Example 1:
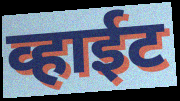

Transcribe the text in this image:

व्हाईट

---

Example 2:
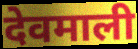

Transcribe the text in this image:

देवमाली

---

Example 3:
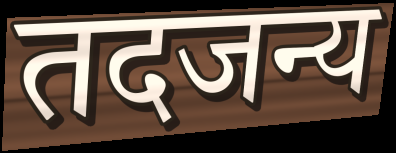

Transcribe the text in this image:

तदजन्य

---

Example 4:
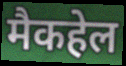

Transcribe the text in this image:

मैकहेल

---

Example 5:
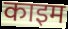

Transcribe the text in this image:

काइम